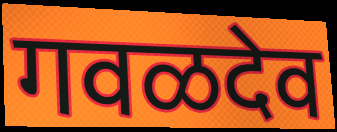
गवळदेव